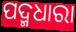
ପଦ୍ମଧାରା